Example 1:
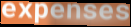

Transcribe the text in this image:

expenses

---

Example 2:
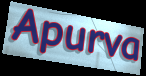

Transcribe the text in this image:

Apurva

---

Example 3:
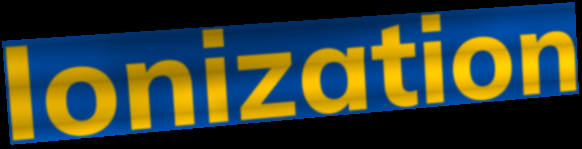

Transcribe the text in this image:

Ionization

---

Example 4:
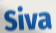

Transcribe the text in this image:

Siva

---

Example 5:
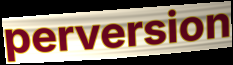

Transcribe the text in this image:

perversion